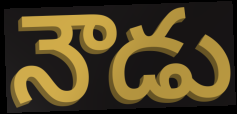
నౌడు